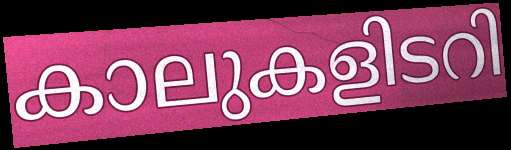
കാലുകളിടറി